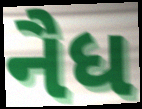
નૈધ